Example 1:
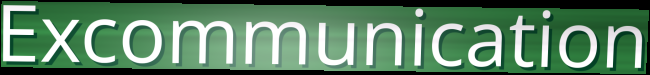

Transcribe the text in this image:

Excommunication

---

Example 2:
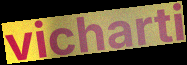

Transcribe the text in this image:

vicharti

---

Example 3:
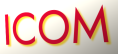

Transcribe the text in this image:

ICOM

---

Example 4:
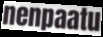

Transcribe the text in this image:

nenpaatu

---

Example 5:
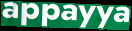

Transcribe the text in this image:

appayya